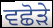
ਵਛੋੜੇ